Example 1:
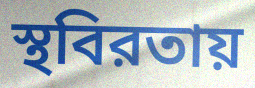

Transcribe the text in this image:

স্থবিরতায়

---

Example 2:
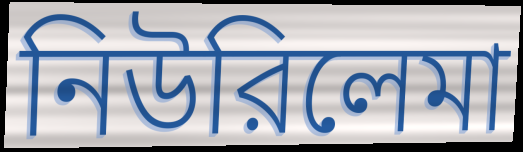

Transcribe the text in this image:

নিউরিলেমা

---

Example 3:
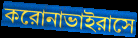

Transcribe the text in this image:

করোনাভাইরাসে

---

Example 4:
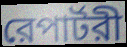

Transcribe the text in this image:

রেপার্টরী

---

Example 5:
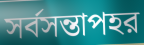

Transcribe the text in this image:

সর্বসন্তাপহর